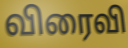
விரைவி